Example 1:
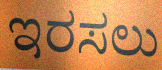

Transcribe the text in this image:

ಇರಸಲು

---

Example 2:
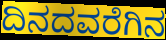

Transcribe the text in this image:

ದಿನದವರೆಗಿನ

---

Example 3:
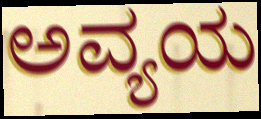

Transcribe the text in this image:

ಅವ್ಯಯ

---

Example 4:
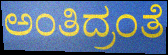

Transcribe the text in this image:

ಅಂತಿದ್ರಂತೆ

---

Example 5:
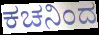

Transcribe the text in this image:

ಕಚನಿಂದ